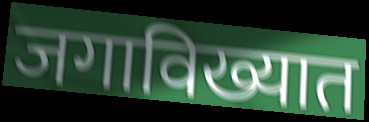
जगाविख्यात